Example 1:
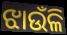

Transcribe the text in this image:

ଝାଉଁଳି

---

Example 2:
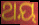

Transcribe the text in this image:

ଥୟ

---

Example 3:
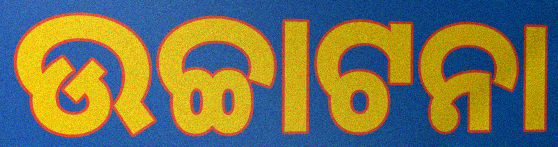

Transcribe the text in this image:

ଉଚ୍ଚାଟନା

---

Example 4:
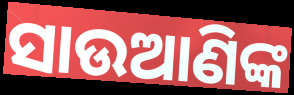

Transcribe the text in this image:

ସାଉଆଣିଙ୍କ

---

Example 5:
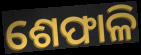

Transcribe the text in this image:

ଶେଫାଳି